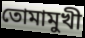
তোমামুখী